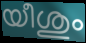
യീശും